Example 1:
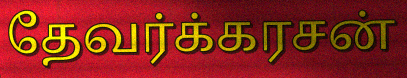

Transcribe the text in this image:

தேவர்க்கரசன்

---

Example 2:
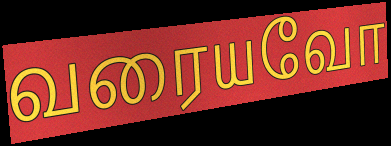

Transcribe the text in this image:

வரையவோ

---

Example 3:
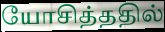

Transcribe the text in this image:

யோசித்ததில்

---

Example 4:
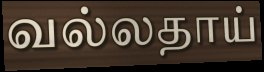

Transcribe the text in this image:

வல்லதாய்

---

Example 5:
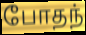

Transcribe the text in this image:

போதந்